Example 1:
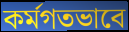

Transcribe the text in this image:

কর্মগতভাবে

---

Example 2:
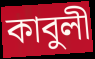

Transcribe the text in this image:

কাবুলী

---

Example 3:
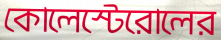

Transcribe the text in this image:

কোলেস্টেরোলের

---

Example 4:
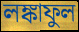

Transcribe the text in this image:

লঙ্কাফুল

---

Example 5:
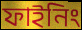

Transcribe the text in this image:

ফাইনিং